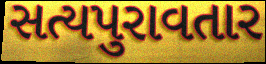
સત્યપુરાવતાર